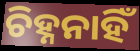
ଚିହ୍ନନାହିଁ